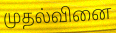
முதல்வினை